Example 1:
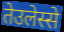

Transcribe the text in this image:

तेउलेस्से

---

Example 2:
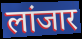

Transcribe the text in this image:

लांजार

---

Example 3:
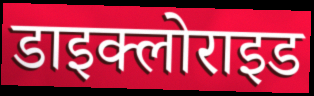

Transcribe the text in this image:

डाइक्लोराइड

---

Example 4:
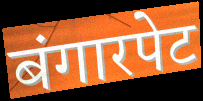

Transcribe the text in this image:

बंगारपेट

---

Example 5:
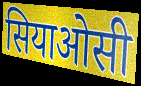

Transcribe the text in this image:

सियाओसी